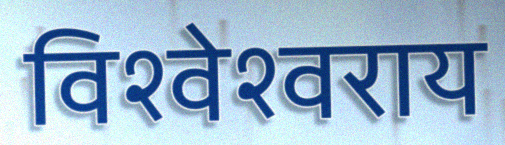
विश्वेश्वराय